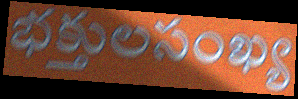
భక్తులసంఖ్య